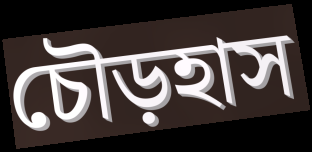
চৌড়হাস